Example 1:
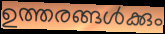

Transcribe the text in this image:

ഉത്തരങ്ങൾക്കും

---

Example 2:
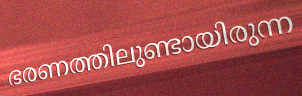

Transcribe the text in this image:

ഭരണത്തിലുണ്ടായിരുന്ന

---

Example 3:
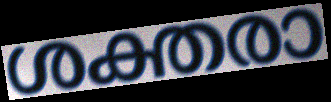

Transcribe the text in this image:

ശക്തരാ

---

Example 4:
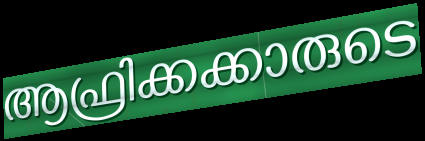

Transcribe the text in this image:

ആഫ്രിക്കക്കാരുടെ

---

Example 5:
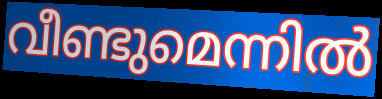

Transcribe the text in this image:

വീണ്ടുമെന്നിൽ